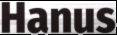
Hanus